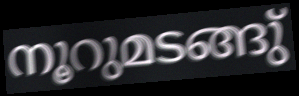
നൂറുമടങ്ങു്